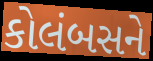
કોલંબસને